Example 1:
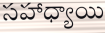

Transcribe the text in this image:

సహాధ్యాయి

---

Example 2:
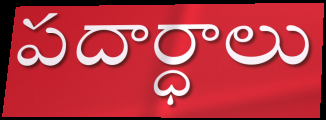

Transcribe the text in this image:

పదార్ధాలు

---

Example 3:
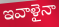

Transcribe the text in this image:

ఇవాళైనా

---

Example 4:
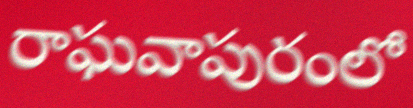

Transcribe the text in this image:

రాఘవాపురంలో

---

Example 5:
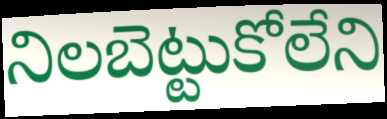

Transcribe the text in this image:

నిలబెట్టుకోలేని